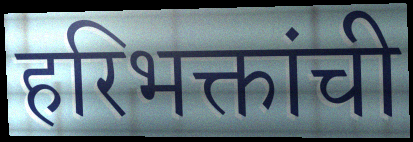
हरिभक्तांची